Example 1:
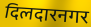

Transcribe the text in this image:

दिलदारनगर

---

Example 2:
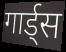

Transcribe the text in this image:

गार्ड्स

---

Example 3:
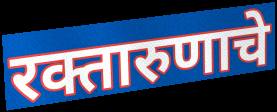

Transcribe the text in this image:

रक्तारुणाचे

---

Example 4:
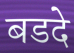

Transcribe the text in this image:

बडदे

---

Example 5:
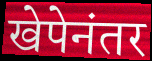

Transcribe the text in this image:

खेपेनंतर